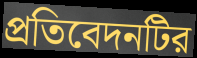
প্রতিবেদনটির